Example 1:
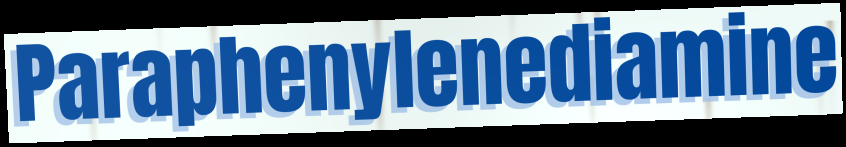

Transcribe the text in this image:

Paraphenylenediamine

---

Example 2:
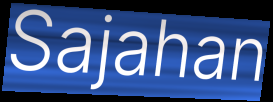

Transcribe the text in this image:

Sajahan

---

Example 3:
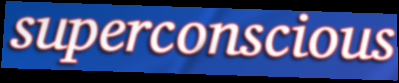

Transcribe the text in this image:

superconscious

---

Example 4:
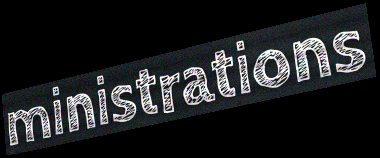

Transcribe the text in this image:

ministrations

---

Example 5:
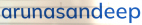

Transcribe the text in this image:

arunasandeep